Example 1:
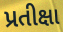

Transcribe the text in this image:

પ્રતીક્ષા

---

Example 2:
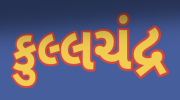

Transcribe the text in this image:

કુલ્લચંદ્ર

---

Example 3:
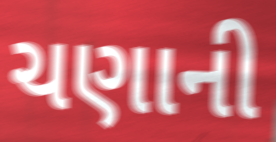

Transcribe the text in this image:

ચણાની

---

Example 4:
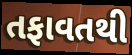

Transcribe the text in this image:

તફાવતથી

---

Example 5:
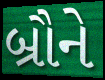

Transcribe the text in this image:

બ્રૌને